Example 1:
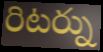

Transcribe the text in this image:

రిటర్ను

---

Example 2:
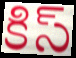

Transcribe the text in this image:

కిస్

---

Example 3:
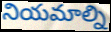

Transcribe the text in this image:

నియమాల్ని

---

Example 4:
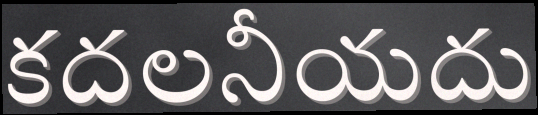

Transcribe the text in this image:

కదలనీయదు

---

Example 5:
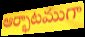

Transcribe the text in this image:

ఆర్భాటముగా